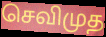
செவிமுத